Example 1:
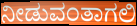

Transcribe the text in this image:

ನೀಡುವಂತಾಗಲಿ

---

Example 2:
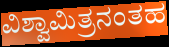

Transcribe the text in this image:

ವಿಶ್ವಾಮಿತ್ರನಂತಹ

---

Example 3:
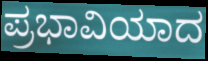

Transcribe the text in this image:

ಪ್ರಭಾವಿಯಾದ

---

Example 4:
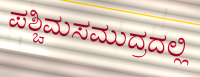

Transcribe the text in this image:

ಪಶ್ಚಿಮಸಮುದ್ರದಲ್ಲಿ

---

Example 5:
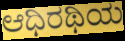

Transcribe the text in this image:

ಆಧಿರಥಿಯ